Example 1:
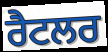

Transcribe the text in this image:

ਰੈਟਲਰ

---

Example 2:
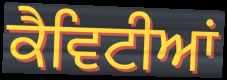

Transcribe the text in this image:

ਕੈਵਿਟੀਆਂ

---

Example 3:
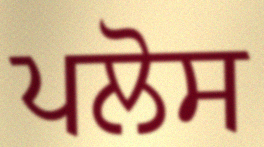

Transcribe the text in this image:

ਪਲੋਸ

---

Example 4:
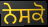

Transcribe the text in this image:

ਨੇਸਕੋ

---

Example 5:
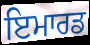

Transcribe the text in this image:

ਇਮਾਰਡ